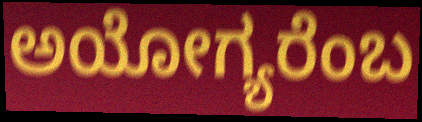
ಅಯೋಗ್ಯರೆಂಬ